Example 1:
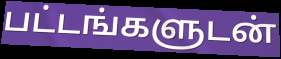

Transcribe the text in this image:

பட்டங்களுடன்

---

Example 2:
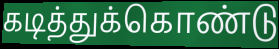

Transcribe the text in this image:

கடித்துக்கொண்டு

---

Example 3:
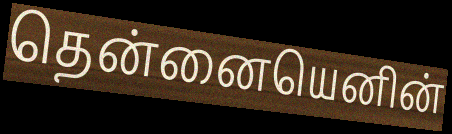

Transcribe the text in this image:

தென்னையெனின்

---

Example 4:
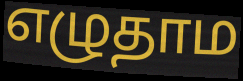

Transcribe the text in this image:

எழுதாம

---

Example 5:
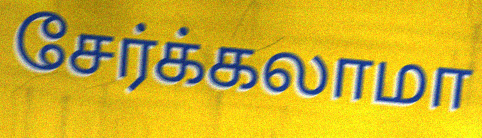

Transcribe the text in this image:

சேர்க்கலாமா